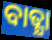
ବାତ୍କ୍ଷା